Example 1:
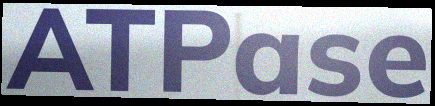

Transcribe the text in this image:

ATPase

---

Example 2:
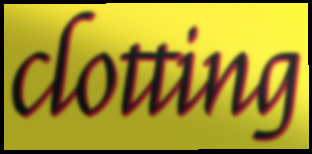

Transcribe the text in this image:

clotting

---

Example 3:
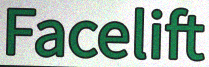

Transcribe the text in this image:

Facelift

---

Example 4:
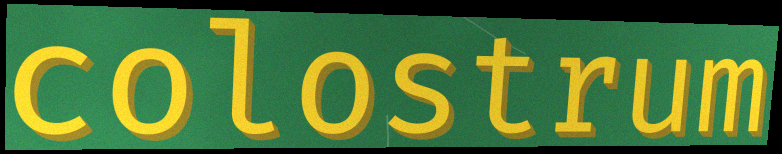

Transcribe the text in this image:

colostrum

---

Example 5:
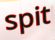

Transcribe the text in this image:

spit